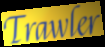
Trawler